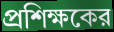
প্রশিক্ষকের